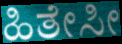
ಹಿತೇಸೀ